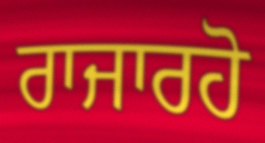
ਰਾਜਾਰਹੋ